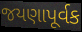
જયણાપૂર્વક